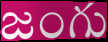
జంగు